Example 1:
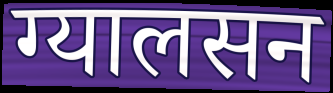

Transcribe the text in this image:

ग्यालसन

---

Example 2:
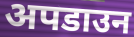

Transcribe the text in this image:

अपडाउन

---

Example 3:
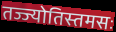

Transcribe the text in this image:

तज्ज्योतिस्तमसः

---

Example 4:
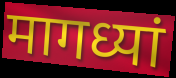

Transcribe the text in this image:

मागध्यां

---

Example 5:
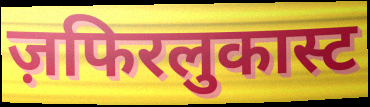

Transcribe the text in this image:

ज़फिरलुकास्ट